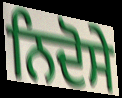
ਨਿਦੋਸੇ